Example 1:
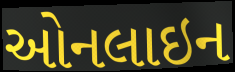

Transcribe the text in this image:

ઓનલાઇન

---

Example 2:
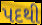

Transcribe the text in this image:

પદથી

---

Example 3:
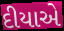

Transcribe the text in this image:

દીયાએ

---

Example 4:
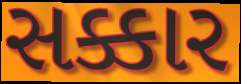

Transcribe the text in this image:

સક્કાર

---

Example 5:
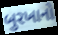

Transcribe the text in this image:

બુરખાનો